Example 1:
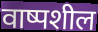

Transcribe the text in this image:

वाष्पशील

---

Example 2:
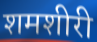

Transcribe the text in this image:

शमशीरी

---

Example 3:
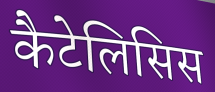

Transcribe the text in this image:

कैटेलिसिस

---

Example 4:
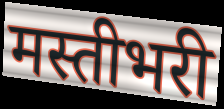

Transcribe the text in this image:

मस्तीभरी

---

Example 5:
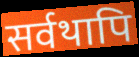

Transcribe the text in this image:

सर्वथापि